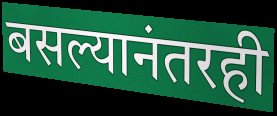
बसल्यानंतरही